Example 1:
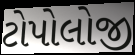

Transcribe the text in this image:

ટોપોલોજી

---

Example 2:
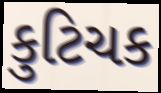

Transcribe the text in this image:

કુટિચક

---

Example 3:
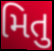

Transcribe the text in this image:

મિતુ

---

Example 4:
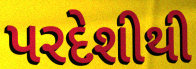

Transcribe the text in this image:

પરદેશીથી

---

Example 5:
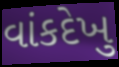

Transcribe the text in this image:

વાંકદેખુ